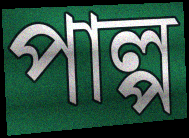
পাল্প